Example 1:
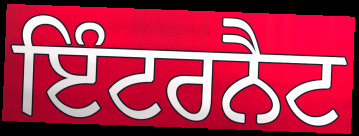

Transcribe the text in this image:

ਇੰਟਰਨੈਟ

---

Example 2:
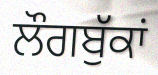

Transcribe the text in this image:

ਲੌਗਬੁੱਕਾਂ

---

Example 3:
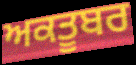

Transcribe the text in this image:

ਅਕਤੂਬਰ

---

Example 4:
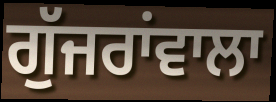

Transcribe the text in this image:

ਗੁੱਜਰਾਂਵਾਲਾ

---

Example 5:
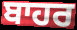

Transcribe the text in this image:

ਬਾਹਰ